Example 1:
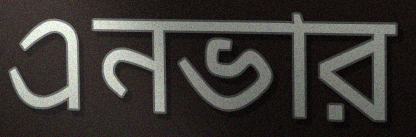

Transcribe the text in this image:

এনভার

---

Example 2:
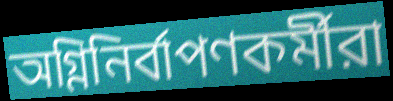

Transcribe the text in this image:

অগ্নিনির্বাপণকর্মীরা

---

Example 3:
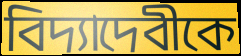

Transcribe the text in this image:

বিদ্যাদেবীকে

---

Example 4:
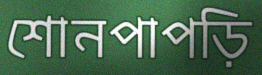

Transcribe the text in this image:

শোনপাপড়ি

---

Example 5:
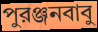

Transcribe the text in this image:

পুরঞ্জনবাবু